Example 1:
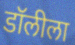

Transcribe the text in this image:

डॉलीला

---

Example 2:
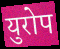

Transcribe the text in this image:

युरोप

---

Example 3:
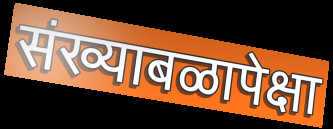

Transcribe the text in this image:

संख्याबळापेक्षा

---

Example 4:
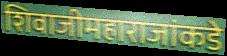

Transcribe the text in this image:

शिवाजीमहाराजांकडे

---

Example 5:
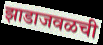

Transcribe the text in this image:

झाडाजवळची